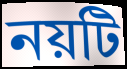
নয়টি